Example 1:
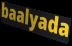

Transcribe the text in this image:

baalyada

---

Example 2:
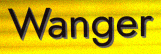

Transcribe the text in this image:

Wanger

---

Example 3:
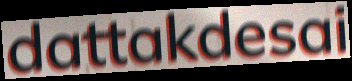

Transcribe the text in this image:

dattakdesai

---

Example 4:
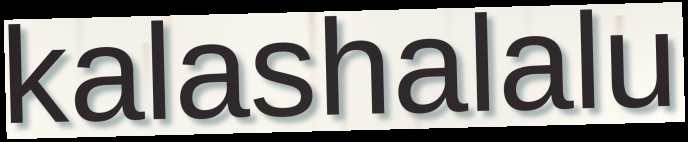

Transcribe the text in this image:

kalashalalu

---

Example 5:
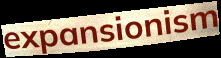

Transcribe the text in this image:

expansionism